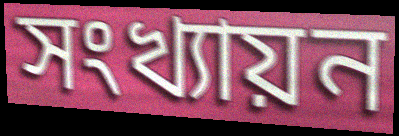
সংখ্যায়ন